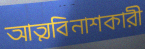
আত্মবিনাশকারী